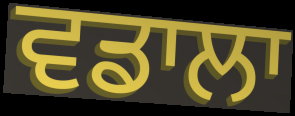
ਵਡਾਲਾ